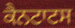
ਕੈਨਟਾਟਸ